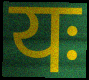
यः